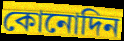
কোনোদিন